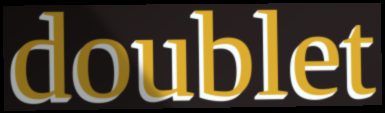
doublet